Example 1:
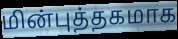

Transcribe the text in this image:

மின்புத்தகமாக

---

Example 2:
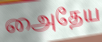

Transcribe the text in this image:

அைதேய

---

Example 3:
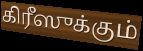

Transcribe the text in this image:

கிரீஸுக்கும்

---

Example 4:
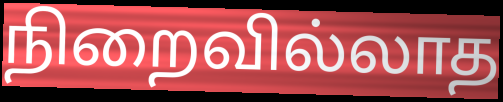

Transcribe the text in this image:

நிறைவில்லாத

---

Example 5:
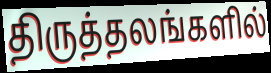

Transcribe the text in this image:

திருத்தலங்களில்